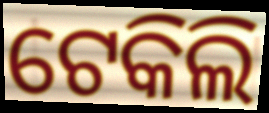
ଟେକିଲି